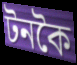
টনকৈ